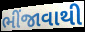
ભીંજાવાથી